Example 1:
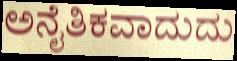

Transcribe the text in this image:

ಅನೈತಿಕವಾದುದು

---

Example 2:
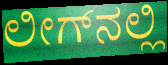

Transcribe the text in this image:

ಲೀಗ್‌ನಲ್ಲಿ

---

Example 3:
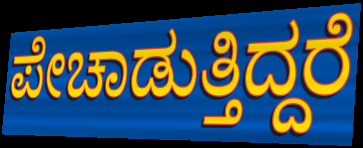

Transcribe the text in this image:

ಪೇಚಾಡುತ್ತಿದ್ದರೆ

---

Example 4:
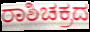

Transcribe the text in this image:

ರಾಶಿಚಕ್ರದ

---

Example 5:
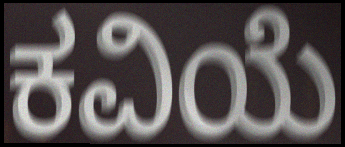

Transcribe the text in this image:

ಕವಿಯೆ